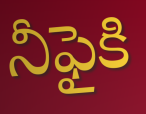
నీఫైకి